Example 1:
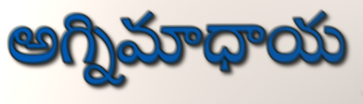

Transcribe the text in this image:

అగ్నిమాధాయ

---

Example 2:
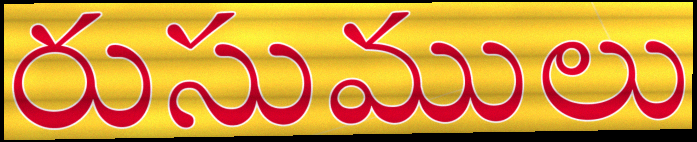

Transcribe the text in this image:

రుసుములు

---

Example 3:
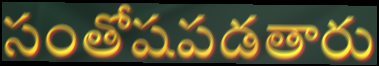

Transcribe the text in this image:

సంతోషపడతారు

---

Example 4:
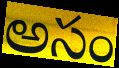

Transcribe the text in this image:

అసం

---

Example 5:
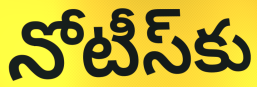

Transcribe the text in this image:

నోటీస్‌కు